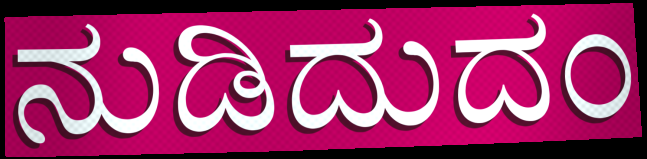
ನುಡಿದುದಂ